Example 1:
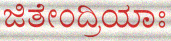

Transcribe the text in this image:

ಜಿತೇಂದ್ರಿಯಾಃ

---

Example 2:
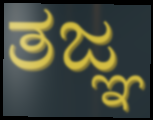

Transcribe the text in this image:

ತಜ್ಞ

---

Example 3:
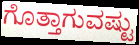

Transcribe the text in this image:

ಗೊತ್ತಾಗುವಷ್ಟು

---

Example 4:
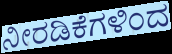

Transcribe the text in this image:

ನೀರಡಿಕೆಗಳಿಂದ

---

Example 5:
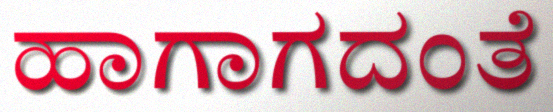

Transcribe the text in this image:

ಹಾಗಾಗದಂತೆ